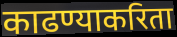
काढण्याकरिता